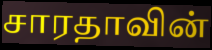
சாரதாவின்